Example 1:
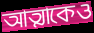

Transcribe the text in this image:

আত্মাকেও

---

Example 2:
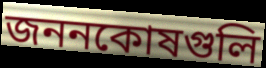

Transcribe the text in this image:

জননকোষগুলি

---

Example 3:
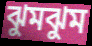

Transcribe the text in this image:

ঝুমঝুম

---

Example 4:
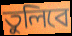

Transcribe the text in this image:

তুলিবে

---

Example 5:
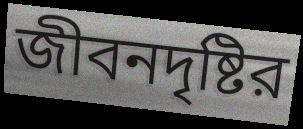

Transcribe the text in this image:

জীবনদৃষ্টির